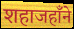
शहाजहाँने